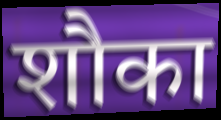
शौका